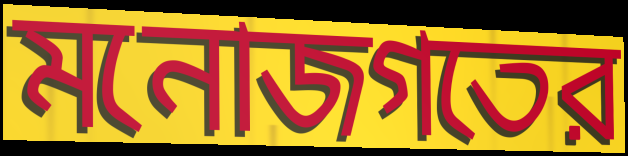
মনোজগতের